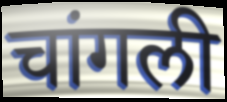
चांगली